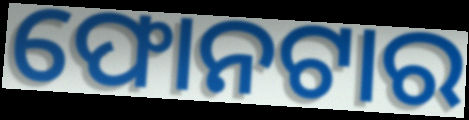
ଫୋନଟାର